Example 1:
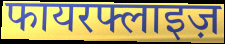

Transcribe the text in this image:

फायरफ्लाइज़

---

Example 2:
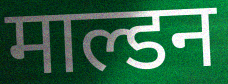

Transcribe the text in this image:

माल्डन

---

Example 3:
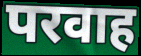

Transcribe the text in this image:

परवाह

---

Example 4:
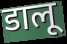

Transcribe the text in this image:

डालू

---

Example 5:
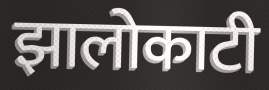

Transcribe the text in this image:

झालोकाटी